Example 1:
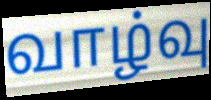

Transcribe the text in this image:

வாழ்வு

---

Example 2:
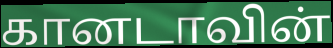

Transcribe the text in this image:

கானடாவின்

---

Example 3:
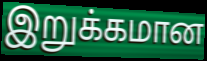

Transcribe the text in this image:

இறுக்கமான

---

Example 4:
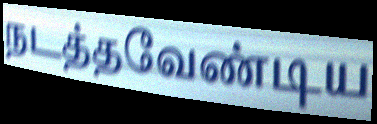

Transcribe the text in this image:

நடத்தவேண்டிய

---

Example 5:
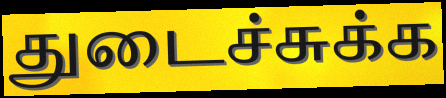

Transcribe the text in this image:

துடைச்சுக்க